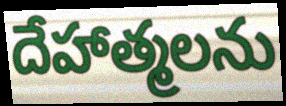
దేహాత్మలను